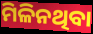
ମିଳିନଥିବା